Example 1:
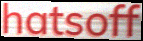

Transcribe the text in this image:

hatsoff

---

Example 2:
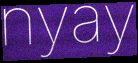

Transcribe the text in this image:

nyay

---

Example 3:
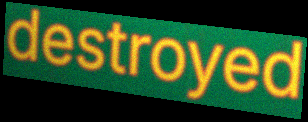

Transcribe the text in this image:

destroyed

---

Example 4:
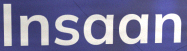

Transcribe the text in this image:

Insaan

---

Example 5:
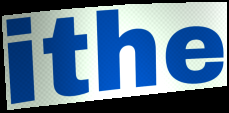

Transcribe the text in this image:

ithe